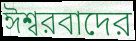
ঈশ্বরবাদের